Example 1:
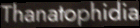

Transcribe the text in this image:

Thanatophidia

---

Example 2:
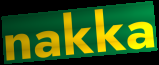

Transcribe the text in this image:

nakka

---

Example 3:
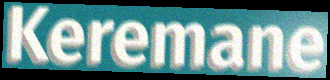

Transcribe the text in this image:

Keremane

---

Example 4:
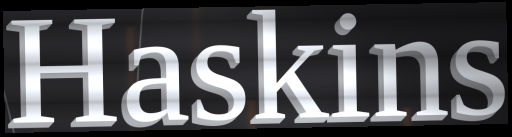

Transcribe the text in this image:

Haskins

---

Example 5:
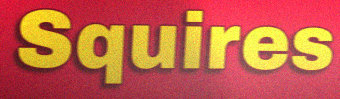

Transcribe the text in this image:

Squires